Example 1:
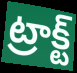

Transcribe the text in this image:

ట్రాక్ట్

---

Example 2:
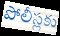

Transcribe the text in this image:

పోలీస్లకు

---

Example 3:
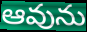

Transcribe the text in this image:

ఆవును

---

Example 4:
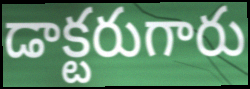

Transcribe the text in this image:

డాక్టరుగారు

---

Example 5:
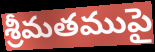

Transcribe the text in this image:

శ్రీమతముపై